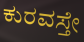
ಕುರವಸ್ತೇ